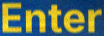
Enter